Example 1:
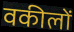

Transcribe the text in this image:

वकीलों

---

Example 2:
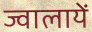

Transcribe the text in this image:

ज्वालायें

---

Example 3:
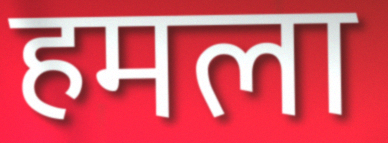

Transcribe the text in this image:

हमला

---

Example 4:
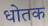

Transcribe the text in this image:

धोतक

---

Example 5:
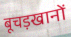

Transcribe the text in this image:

बूचड़खानों